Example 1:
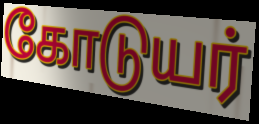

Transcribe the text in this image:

கோடுயர்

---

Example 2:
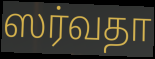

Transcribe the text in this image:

ஸர்வதா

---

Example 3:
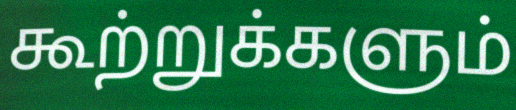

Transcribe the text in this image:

கூற்றுக்களும்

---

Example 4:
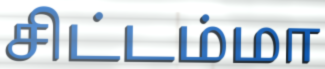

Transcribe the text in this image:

சிட்டம்மா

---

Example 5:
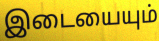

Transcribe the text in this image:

இடையையும்